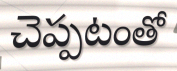
చెప్పటంతో